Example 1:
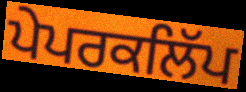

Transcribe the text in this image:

ਪੇਪਰਕਲਿੱਪ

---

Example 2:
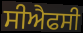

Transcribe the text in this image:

ਸੀਐਫਸੀ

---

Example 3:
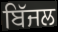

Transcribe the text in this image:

ਬਿੱਜਲ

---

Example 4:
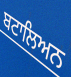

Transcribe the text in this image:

ਬਟਾਲਿਅਨ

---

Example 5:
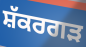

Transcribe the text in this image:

ਸ਼ੱਕਰਗੜ